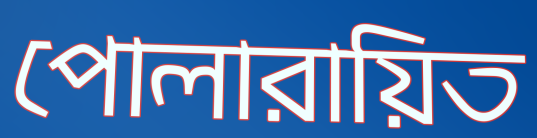
পোলারায়িত